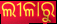
ଲୀଳାରୁ